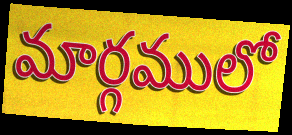
మార్గములో